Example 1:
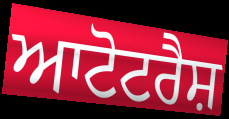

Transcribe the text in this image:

ਆਟੋਟਰੈਸ਼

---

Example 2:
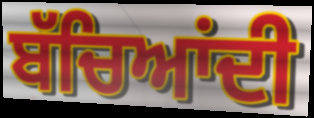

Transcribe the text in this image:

ਬੱਚਿਆਂਦੀ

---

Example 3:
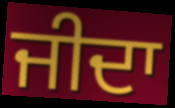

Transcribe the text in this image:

ਜੀਦਾ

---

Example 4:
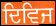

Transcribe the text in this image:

ਦਿਵਿਜ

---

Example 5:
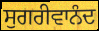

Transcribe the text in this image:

ਸੁਗਰੀਵਾਨੰਦ